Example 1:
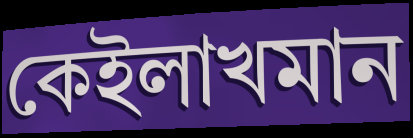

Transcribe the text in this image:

কেইলাখমান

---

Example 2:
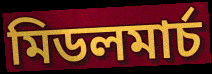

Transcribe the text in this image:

মিডলমাৰ্চ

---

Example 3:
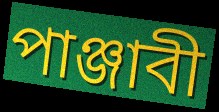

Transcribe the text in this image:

পাঞ্জাবী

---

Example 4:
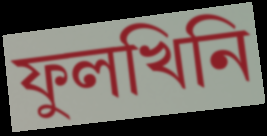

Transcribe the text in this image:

ফুলখিনি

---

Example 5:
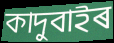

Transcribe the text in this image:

কাদুবাইৰ